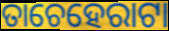
ତାଚେହେରାଟା